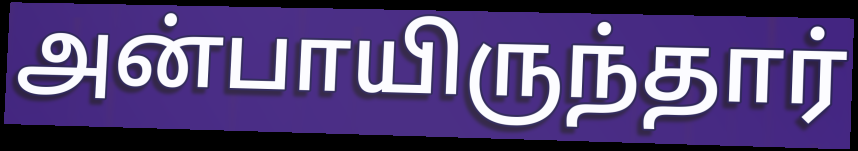
அன்பாயிருந்தார்